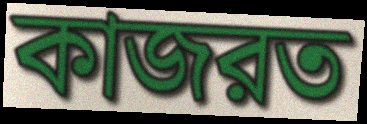
কাজরত